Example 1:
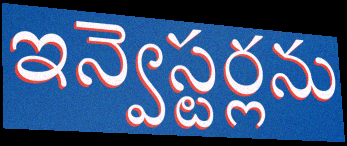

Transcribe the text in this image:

ఇన్వెస్టర్లను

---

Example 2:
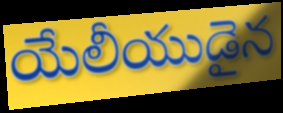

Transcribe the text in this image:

యేలీయుడైన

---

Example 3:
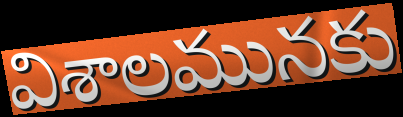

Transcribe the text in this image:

విశాలమునకు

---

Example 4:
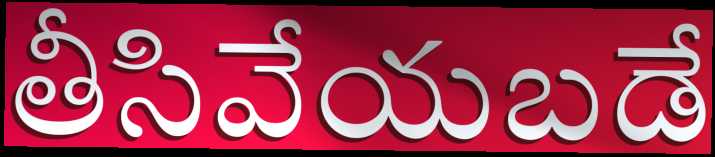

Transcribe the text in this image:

తీసివేయబడే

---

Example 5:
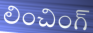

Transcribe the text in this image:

లించింగ్